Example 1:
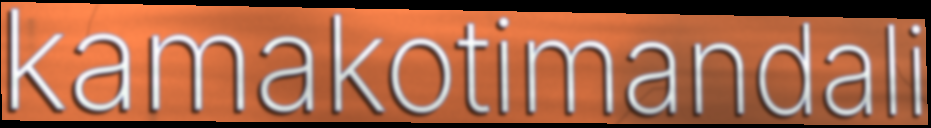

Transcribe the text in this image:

kamakotimandali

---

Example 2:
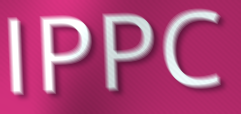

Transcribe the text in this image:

IPPC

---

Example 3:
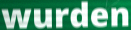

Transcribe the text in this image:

wurden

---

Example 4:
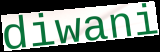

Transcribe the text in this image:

diwani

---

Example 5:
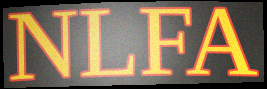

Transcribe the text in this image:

NLFA